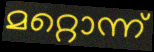
മറ്റൊന്ന്